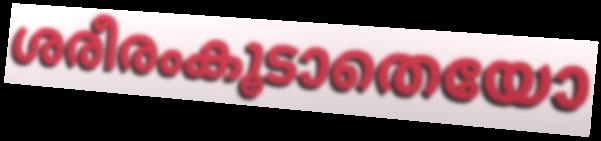
ശരീരംകൂടാതെയോ